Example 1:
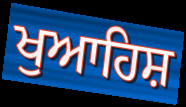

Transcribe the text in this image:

ਖੁਆਹਿਸ਼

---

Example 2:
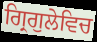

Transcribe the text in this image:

ਗ੍ਰਿਗੁਲੇਵਿਚ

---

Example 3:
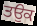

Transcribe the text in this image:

ਤਉਕ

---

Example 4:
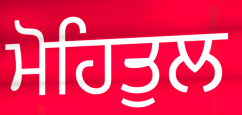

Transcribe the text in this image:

ਮੋਹਿਤੁਲ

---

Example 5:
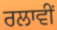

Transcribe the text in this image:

ਰਲਾਵੀਂ